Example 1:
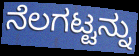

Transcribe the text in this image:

ನೆಲಗಟ್ಟನ್ನು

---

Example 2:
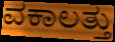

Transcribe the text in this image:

ವಕಾಲತ್ತು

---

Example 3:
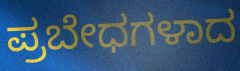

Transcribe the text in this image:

ಪ್ರಬೇಧಗಳಾದ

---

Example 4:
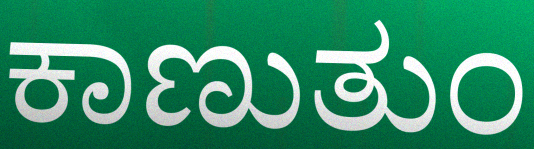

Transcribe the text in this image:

ಕಾಣುತುಂ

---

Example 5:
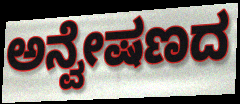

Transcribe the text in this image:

ಅನ್ವೇಷಣದ